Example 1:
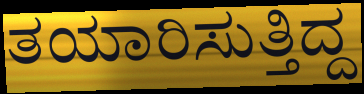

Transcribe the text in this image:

ತಯಾರಿಸುತ್ತಿದ್ದ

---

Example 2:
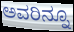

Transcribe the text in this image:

ಅವರಿನ್ನೂ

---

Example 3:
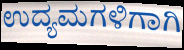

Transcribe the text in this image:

ಉದ್ಯಮಗಳಿಗಾಗಿ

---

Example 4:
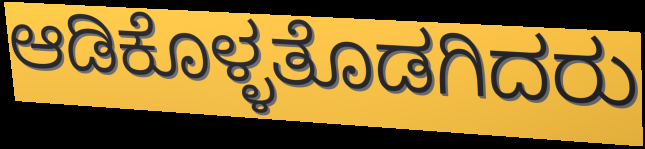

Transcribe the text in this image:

ಆಡಿಕೊಳ್ಳತೊಡಗಿದರು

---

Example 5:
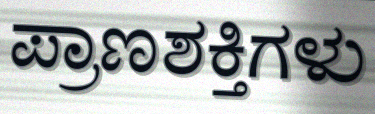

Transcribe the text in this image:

ಪ್ರಾಣಶಕ್ತಿಗಳು